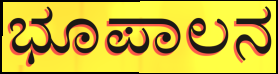
ಭೂಪಾಲನ